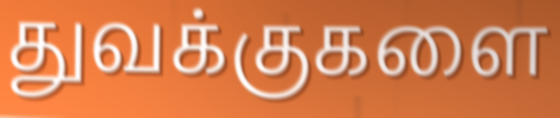
துவக்குகளை